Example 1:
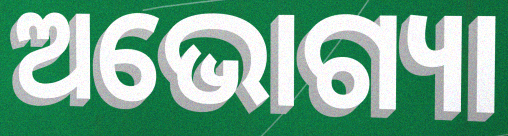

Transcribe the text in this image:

ଅଭୋଗ୍ୟା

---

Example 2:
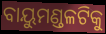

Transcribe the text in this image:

ବାୟୁମଣ୍ଡଳଟିକୁ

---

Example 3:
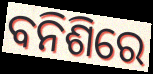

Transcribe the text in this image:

ବନିଶିରେ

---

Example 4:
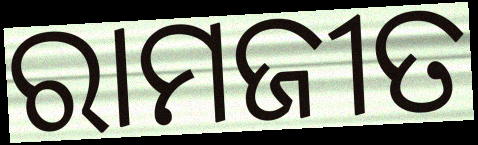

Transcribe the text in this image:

ରାମଜୀତ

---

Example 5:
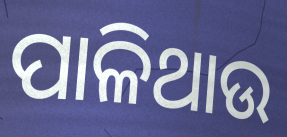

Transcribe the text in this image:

ପାଳିଥାଉ